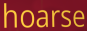
hoarse